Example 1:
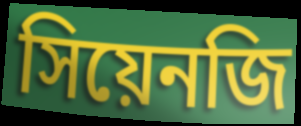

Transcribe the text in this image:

সিয়েনজি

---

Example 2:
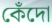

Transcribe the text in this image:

কেঁদো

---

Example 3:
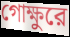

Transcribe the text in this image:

গোক্ষুরে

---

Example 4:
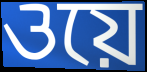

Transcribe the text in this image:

ওয়ে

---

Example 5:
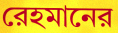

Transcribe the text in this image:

রেহমানের